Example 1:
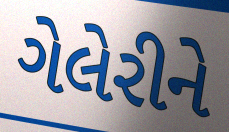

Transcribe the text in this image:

ગેલેરીને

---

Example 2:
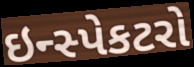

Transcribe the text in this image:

ઇન્સ્પેકટરો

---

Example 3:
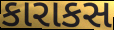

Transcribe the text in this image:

કારાકસ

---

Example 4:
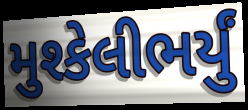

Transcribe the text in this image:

મુશ્કેલીભર્યું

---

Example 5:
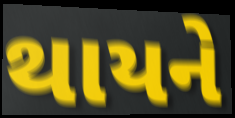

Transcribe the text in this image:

થાયને